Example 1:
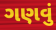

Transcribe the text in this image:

ગણવું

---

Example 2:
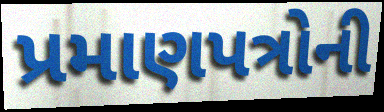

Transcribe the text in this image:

પ્રમાણપત્રોની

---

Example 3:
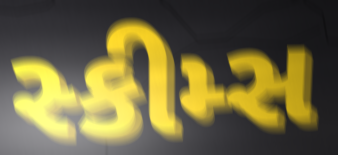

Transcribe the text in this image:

સ્કીમ્સ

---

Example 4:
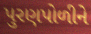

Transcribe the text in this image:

પુરણપોળીને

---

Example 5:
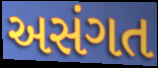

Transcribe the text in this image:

અસંગત